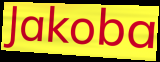
Jakoba